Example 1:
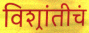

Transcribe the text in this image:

विश्रांतीचं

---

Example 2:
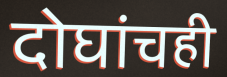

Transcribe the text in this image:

दोघांचही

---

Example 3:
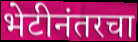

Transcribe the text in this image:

भेटीनंतरचा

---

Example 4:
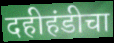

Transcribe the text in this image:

दहीहंडीचा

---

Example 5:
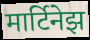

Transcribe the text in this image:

मार्टिनेझ